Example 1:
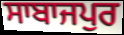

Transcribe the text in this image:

ਸਾਬਾਜਪੁਰ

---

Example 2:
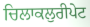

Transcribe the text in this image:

ਚਿਲਾਕਲੁਰੀਪੇਟ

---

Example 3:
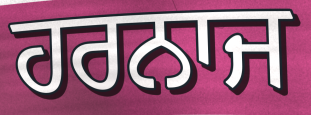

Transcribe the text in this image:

ਹਰਨਾਜ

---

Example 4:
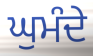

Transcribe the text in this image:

ਘੁਮੰਦੇ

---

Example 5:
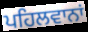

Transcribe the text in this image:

ਪਹਿਲਵਾਨਾਂ